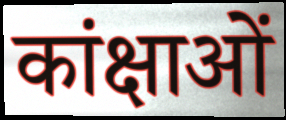
कांक्षाओं